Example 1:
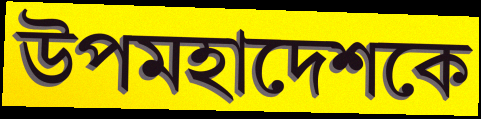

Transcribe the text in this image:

উপমহাদেশকে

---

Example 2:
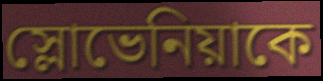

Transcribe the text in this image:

স্লোভেনিয়াকে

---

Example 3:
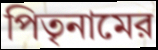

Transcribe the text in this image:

পিতৃনামের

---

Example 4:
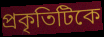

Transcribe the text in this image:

প্রকৃতিটিকে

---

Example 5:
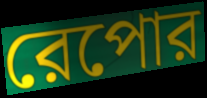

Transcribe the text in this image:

রেপোর